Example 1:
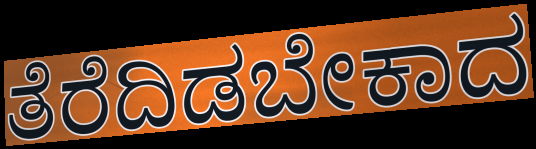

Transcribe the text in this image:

ತೆರೆದಿಡಬೇಕಾದ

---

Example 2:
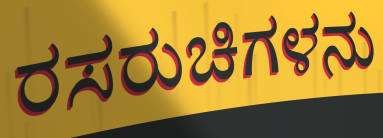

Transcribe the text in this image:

ರಸರುಚಿಗಳನು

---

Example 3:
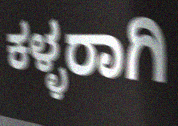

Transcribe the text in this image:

ಕಳ್ಳರಾಗಿ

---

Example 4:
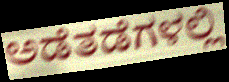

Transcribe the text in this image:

ಅಡೆತಡೆಗಳಲ್ಲಿ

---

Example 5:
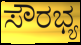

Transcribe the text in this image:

ಸೌರಭ್ಯ